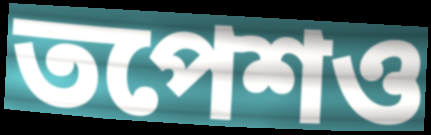
তপেশও